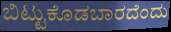
ಬಿಟ್ಟುಕೊಡಬಾರದೆಂದು